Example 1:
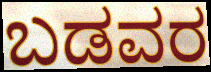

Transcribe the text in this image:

ಬಡವರ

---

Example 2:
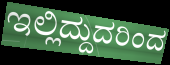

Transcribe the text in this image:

ಇಲ್ಲಿದ್ದುದರಿಂದ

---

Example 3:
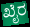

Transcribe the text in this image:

ಖೈರ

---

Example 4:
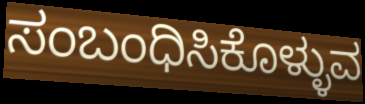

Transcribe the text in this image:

ಸಂಬಂಧಿಸಿಕೊಳ್ಳುವ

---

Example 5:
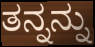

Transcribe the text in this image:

ತನ್ನನ್ನು